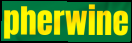
pherwine